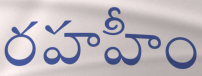
రహహీం